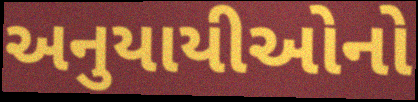
અનુયાયીઓનો